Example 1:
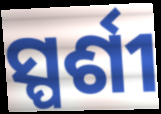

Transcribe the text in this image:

ସ୍ପର୍ଶୀ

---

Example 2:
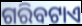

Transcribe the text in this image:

ଗରିବଟାଏ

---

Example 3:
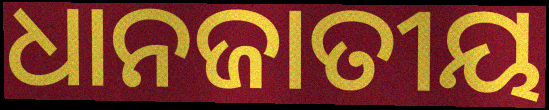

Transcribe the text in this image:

ଧାନଜାତୀୟ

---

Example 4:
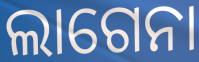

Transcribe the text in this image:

ଲାଗେନା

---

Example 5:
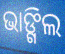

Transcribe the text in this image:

ଭାଙ୍ଗିଲ